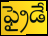
ఫ్రైడే